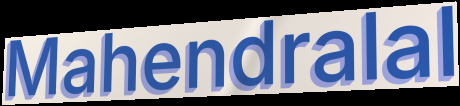
Mahendralal